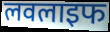
लवलाइफ